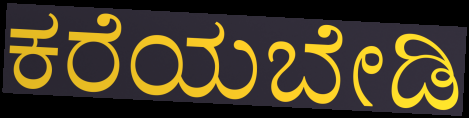
ಕರೆಯಬೇಡಿ